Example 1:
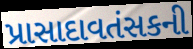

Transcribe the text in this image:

પ્રાસાદાવતંસકની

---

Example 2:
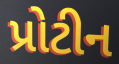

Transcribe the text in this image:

પ્રોટીન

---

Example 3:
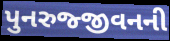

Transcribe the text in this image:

પુનરુજ્જીવનની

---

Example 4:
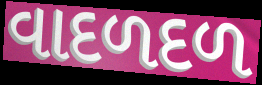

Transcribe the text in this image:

વાદળદળ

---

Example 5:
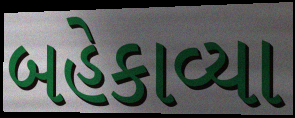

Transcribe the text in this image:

બહેકાવ્યા